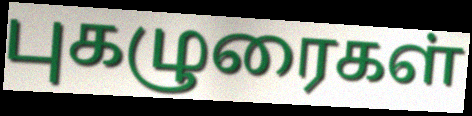
புகழுரைகள்